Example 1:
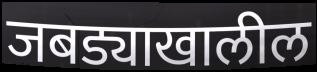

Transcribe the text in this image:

जबड्याखालील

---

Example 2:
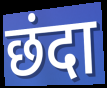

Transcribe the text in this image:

छंदा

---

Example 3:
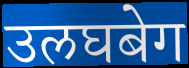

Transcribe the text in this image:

उलघबेग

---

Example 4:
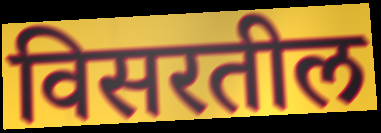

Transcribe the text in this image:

विसरतील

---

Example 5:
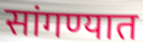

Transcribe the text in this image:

सांगण्यात